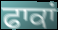
ਫਾਕਾਂ